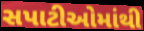
સપાટીઓમાંથી